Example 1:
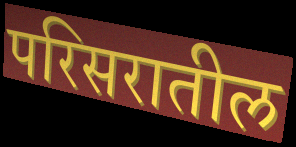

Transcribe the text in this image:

परिसरातील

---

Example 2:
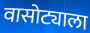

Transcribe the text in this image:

वासोट्याला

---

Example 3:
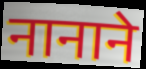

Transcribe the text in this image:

नानाने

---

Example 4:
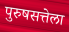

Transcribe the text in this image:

पुरुषसत्तेला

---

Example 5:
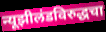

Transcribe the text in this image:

न्यूझीलंडविरुद्धचा